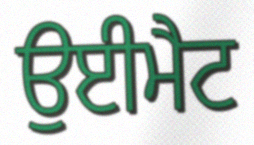
ਉਈਮੈਟ